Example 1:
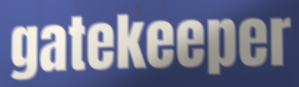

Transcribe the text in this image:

gatekeeper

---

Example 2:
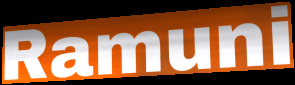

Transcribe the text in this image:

Ramuni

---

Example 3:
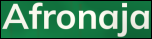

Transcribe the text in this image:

Afronaja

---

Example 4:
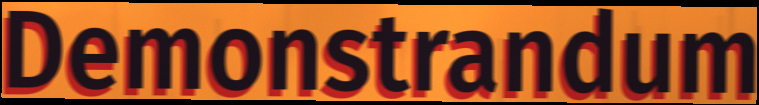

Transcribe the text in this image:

Demonstrandum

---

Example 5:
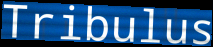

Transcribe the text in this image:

Tribulus